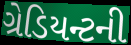
ગ્રેડિયન્ટની